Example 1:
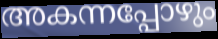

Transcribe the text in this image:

അകന്നപ്പോഴും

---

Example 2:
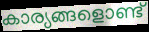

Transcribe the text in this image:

കാര്യങ്ങളൊണ്ട്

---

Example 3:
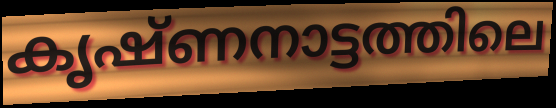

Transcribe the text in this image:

കൃഷ്ണനാട്ടത്തിലെ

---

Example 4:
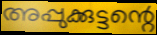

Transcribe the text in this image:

അപ്പുക്കുട്ടന്റെ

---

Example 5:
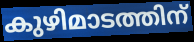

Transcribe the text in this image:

കുഴിമാടത്തിന്